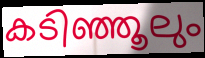
കടിഞ്ഞൂലും